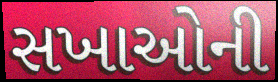
સખાઓની